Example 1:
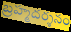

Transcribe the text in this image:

బ్రహ్మదర్శనం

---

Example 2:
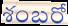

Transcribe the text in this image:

శంబరో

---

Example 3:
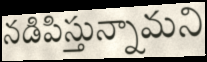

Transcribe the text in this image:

నడిపిస్తున్నామని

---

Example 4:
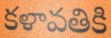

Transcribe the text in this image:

కళావతికి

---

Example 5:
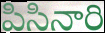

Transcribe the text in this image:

పిసినారి